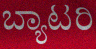
ಬ್ಯಾಟರಿ